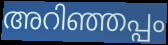
അറിഞ്ഞപ്പം